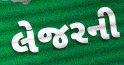
લેજરની